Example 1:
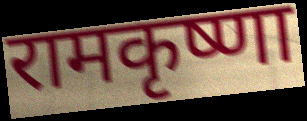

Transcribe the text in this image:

रामकृष्णा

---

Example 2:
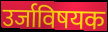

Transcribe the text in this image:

उर्जाविषयक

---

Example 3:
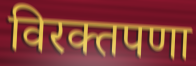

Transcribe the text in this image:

विरक्तपणा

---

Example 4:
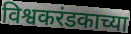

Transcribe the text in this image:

विश्वकरंडकाच्या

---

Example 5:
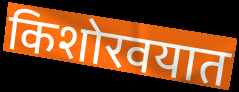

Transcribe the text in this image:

किशोरवयात